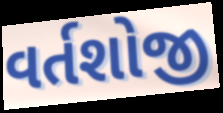
વર્તશોજી